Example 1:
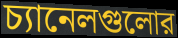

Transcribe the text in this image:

চ্যানেলগুলোর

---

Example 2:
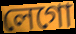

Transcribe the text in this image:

লেগো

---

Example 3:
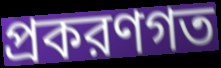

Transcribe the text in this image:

প্রকরণগত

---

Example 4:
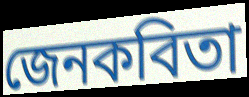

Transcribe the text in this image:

জেনকবিতা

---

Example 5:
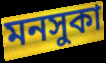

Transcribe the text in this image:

মনসুকা